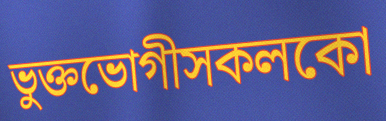
ভুক্তভোগীসকলকো